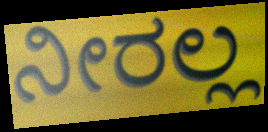
ನೀರಲ್ಲ